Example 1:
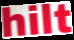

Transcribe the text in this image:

hilt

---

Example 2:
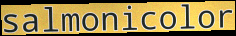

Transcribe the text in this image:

salmonicolor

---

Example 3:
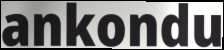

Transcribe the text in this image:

ankondu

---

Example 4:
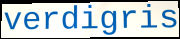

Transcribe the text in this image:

verdigris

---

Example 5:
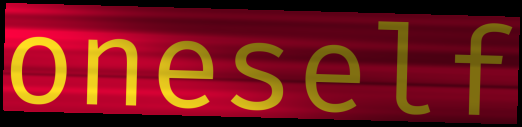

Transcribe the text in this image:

oneself